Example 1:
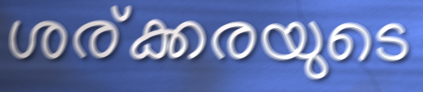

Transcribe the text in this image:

ശര്ക്കരയുടെ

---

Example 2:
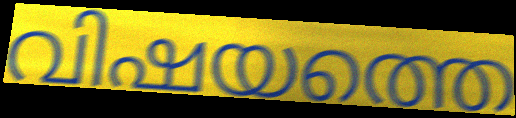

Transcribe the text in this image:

വിഷയത്തെ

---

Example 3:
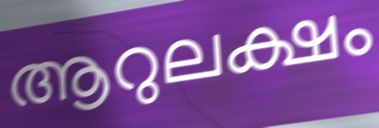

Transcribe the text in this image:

ആറുലക്ഷം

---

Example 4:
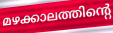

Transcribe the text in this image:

മഴക്കാലത്തിന്റെ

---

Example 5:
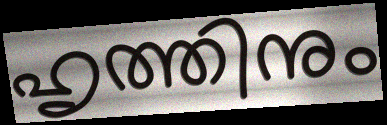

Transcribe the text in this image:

ഹൃത്തിനും